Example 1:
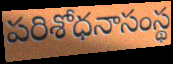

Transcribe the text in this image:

పరిశోధనాసంస్థ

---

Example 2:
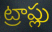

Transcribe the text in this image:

ట్రాప్లు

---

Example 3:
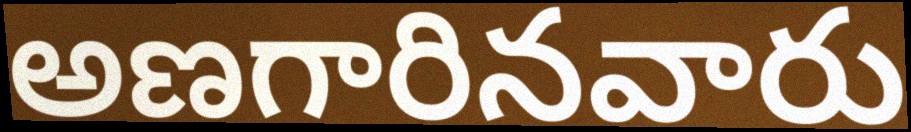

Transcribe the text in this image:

అణగారినవారు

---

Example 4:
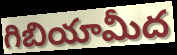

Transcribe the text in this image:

గిబియామీద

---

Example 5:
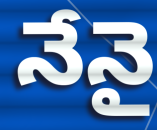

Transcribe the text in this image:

నేనై